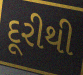
દૂરીથી